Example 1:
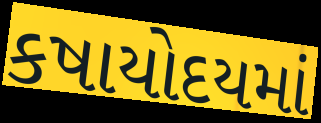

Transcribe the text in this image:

કષાયોદયમાં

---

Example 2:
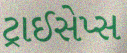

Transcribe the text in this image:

ટ્રાઈસેપ્સ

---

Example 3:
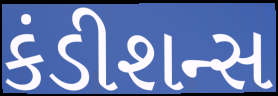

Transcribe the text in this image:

કંડીશન્સ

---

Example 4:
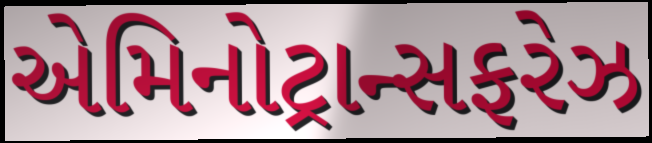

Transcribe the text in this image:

એમિનોટ્રાન્સફરેઝ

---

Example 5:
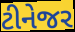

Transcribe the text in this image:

ટીનેજર